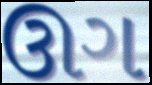
ઊગ